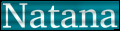
Natana